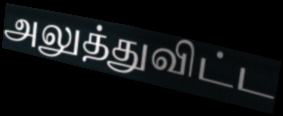
அலுத்துவிட்ட